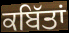
ਕਬਿੱਤਾਂ